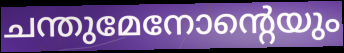
ചന്തുമേനോന്റെയും